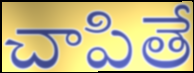
చాపితే